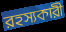
রহস্যকারী